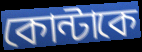
কোন্টাকে